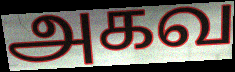
அகவ